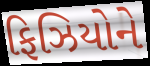
ફિઝિયોને